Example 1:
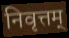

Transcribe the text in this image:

निवृत्तम्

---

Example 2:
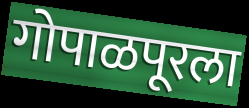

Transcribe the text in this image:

गोपाळपूरला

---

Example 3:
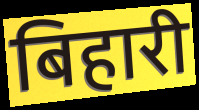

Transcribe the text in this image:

बिहारी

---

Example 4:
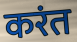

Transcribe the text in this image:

करंत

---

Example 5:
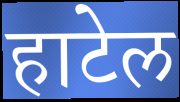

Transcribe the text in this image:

हाटेल